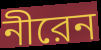
নীরেন